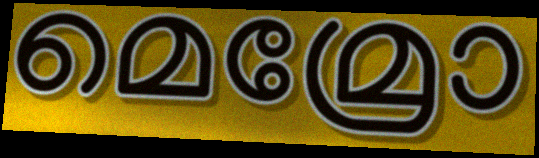
മെമ്രോ